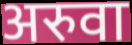
अरुवा